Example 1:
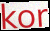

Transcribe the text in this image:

kor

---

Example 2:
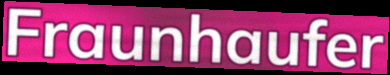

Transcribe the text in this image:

Fraunhaufer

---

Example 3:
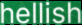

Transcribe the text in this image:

hellish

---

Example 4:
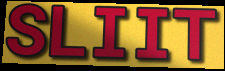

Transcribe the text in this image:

SLIIT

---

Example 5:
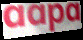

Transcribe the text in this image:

aapa